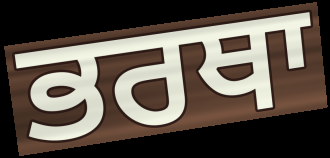
ਭਰਥਾ